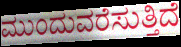
ಮುಂದುವರೆಸುತ್ತಿದೆ